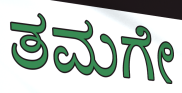
ತಮಗೇ